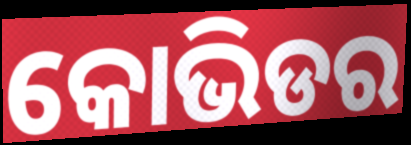
କୋଭିଡର